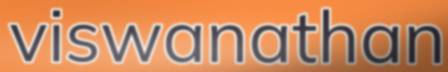
viswanathan